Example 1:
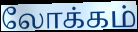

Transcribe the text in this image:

லோக்கம்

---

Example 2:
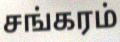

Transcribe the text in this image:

சங்கரம்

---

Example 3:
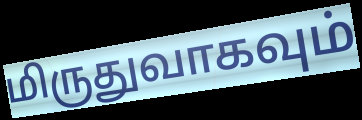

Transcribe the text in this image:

மிருதுவாகவும்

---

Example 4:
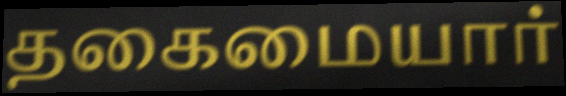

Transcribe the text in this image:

தகைமையார்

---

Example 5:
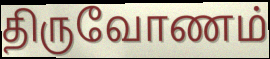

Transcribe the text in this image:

திருவோணம்